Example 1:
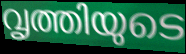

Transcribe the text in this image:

വൃത്തിയുടെ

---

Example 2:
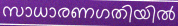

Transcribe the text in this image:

സാധാരണഗതിയിൽ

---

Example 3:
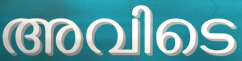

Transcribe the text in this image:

അവിടെ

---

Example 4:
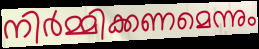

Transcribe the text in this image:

നിർമ്മിക്കണമെന്നും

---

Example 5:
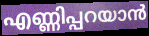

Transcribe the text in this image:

എണ്ണിപ്പറയാൻ